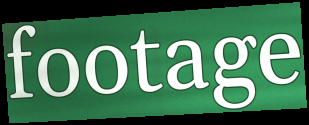
footage